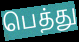
பெத்து